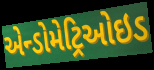
એન્ડોમેટ્રિઓઇડ